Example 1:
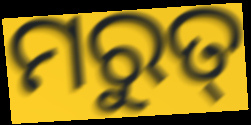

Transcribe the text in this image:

ମରୁତ୍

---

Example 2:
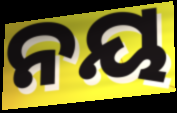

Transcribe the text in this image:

ନୟ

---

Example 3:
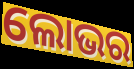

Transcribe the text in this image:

ଲୋଭର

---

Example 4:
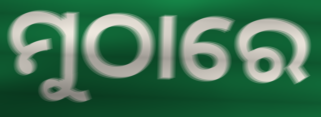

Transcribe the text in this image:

ମୁଠାରେ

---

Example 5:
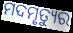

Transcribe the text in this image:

ମଦମୃତ୍ୟୁର